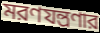
মরণযন্ত্রণার